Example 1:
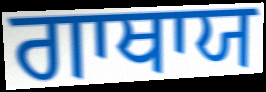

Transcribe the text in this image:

ਗਾਥਾਯ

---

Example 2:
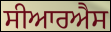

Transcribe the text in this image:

ਸੀਆਰਐਸ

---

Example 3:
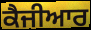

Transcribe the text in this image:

ਕੈਜੀਆਰ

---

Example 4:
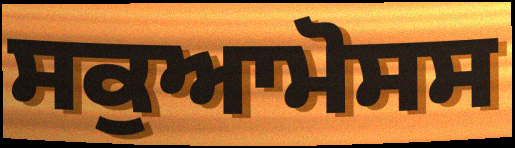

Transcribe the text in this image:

ਸਕੁਆਮੋਸਸ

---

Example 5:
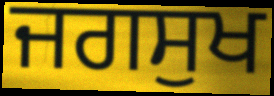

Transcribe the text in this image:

ਜਗਸੁਖ